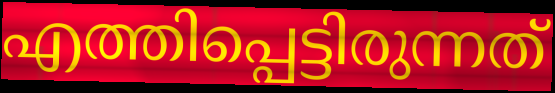
എത്തിപ്പെട്ടിരുന്നത്